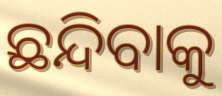
ଛନ୍ଦିବାକୁ